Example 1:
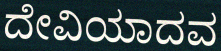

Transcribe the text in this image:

ದೇವಿಯಾದವ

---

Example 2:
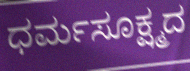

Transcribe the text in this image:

ಧರ್ಮಸೂಕ್ಷ್ಮದ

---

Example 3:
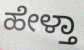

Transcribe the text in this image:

ಹೇಳ್ತಾ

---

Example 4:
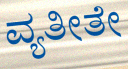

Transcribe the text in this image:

ವ್ಯತೀತೇ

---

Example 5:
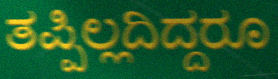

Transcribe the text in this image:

ತಪ್ಪಿಲ್ಲದಿದ್ದರೂ